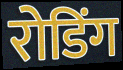
रोडिंग